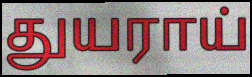
துயராய்